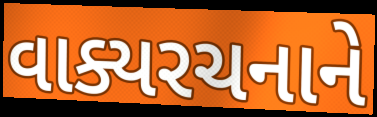
વાક્યરચનાને